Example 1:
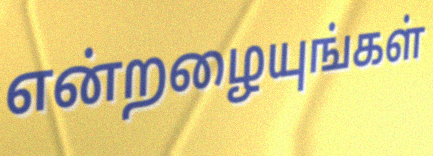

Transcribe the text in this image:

என்றழையுங்கள்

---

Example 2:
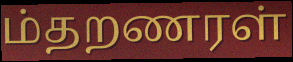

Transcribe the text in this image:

ம்தறணரள்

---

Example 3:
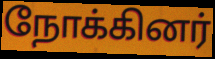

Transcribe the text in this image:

நோக்கினர்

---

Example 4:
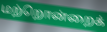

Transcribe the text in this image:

மற்றொன்றைக்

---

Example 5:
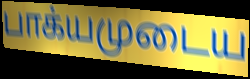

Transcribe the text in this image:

பாக்யமுடைய